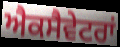
ਐਕਸੈਵੇਟਰਾਂ